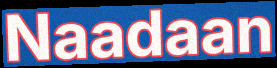
Naadaan